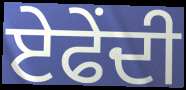
ਏਫੇਂਦੀ